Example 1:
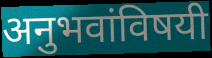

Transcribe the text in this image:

अनुभवांविषयी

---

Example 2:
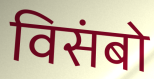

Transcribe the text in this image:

विसंबो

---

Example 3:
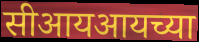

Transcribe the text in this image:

सीआयआयच्या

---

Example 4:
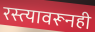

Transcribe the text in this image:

रस्त्यावरूनही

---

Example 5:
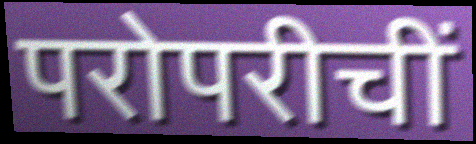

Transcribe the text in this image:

परोपरीचीं